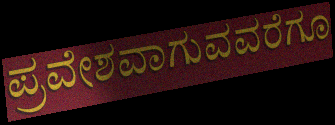
ಪ್ರವೇಶವಾಗುವವರೆಗೂ